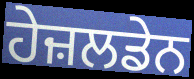
ਹੇਜ਼ਲਡੇਨ